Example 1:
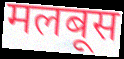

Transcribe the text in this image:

मलबूस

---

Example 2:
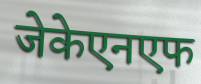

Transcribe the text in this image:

जेकेएनएफ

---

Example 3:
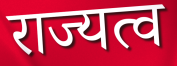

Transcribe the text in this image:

राज्यत्व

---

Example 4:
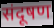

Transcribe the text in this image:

संदूषण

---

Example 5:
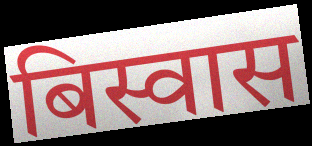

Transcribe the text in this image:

बिस्वास